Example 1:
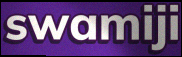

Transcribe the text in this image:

swamiji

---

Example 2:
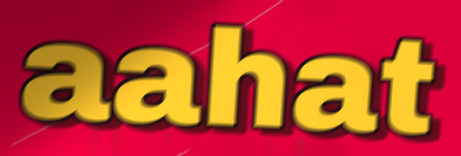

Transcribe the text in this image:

aahat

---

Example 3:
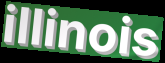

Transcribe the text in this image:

illinois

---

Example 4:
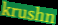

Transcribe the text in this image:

krushn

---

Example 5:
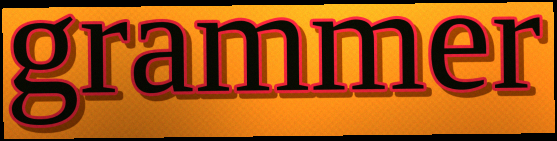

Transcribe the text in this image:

grammer